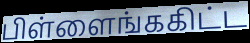
பிள்ளைங்ககிட்ட